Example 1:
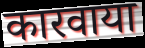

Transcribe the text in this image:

कारवाया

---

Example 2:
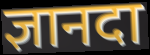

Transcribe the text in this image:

ज्ञानदा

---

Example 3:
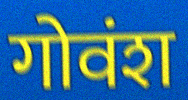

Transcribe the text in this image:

गोवंश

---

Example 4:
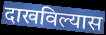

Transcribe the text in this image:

दाखविल्यास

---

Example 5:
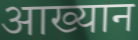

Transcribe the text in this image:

आख्यान